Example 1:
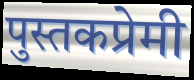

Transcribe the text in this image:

पुस्तकप्रेमी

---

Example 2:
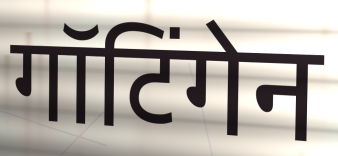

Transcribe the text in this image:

गॉटिंगेन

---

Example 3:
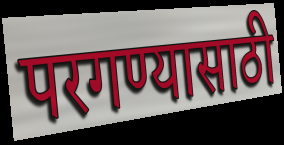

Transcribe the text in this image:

परगण्यासाठी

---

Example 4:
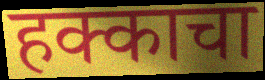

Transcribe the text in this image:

हक्काचा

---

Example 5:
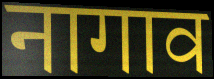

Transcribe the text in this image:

नागाव